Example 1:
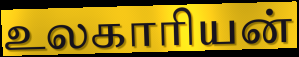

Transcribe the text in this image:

உலகாரியன்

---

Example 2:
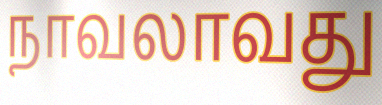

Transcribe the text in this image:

நாவலாவது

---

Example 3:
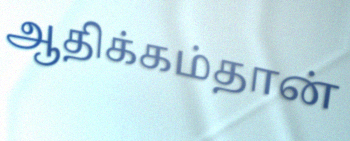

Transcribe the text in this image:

ஆதிக்கம்தான்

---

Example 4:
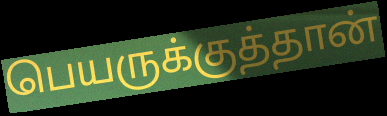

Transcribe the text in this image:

பெயருக்குத்தான்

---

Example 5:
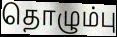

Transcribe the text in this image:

தொழும்பு